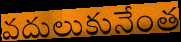
వదులుకునేంత